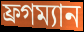
ফ্রগম্যান